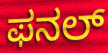
ಫನಲ್